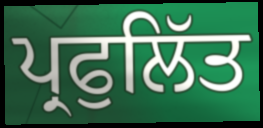
ਪ੍ਰਫੁਲਿੱਤ